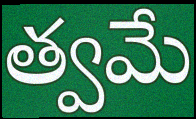
త్వమే